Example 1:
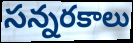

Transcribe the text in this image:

సన్నరకాలు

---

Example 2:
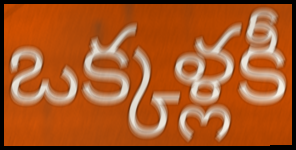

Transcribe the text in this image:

ఒక్కళ్లకీ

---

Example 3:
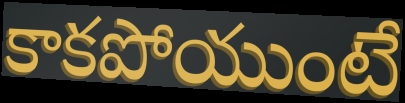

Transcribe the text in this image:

కాకపోయుంటే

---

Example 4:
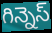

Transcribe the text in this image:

గిన్నెస్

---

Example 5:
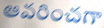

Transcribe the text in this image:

ఆవరించగా